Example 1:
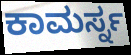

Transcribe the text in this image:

ಕಾಮರ್ಸ್ನ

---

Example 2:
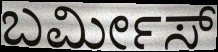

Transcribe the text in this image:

ಬರ್ಮೀಸ್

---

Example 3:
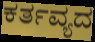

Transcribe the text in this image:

ಕರ್ತವ್ಯದ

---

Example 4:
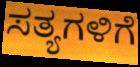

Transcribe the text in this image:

ಸತ್ಯಗಳಿಗೆ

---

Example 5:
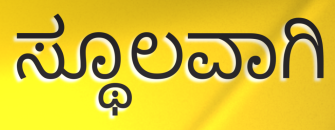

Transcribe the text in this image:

ಸ್ಥೂಲವಾಗಿ